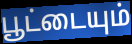
பூட்டையும்